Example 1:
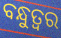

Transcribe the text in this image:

ବନ୍ଧୁତ୍ବର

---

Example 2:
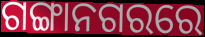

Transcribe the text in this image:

ଗଙ୍ଗାନଗରରେ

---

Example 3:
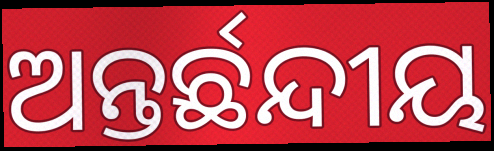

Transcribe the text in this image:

ଅନ୍ତର୍ଛନ୍ଦୀୟ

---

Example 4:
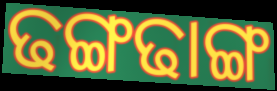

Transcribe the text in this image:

ଢଙ୍ଗଢାଙ୍ଗ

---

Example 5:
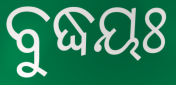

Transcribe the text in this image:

ବୁଦ୍ଧୟଃ